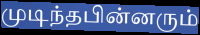
முடிந்தபின்னரும்